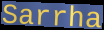
Sarrha